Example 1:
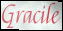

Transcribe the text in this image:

Gracile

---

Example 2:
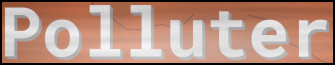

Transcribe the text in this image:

Polluter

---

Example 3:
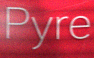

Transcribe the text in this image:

Pyre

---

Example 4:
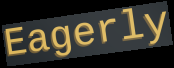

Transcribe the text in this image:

Eagerly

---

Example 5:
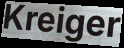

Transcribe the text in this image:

Kreiger